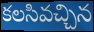
కలసివచ్చిన